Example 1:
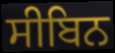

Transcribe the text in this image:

ਸੀਬਿਨ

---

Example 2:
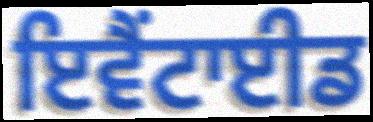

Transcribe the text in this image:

ਇਵੈਂਟਾਈਡ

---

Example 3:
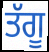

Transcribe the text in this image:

ਤੱਗੂ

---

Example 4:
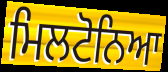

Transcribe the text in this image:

ਮਿਲਟੋਨਿਆ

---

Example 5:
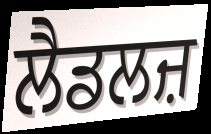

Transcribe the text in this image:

ਲੈਡਲਜ਼